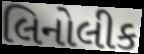
લિનોલીક